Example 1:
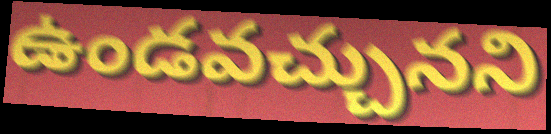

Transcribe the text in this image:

ఉండవచ్చునని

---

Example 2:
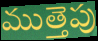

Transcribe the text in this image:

ముత్తెపు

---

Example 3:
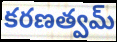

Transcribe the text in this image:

కరణత్వమ్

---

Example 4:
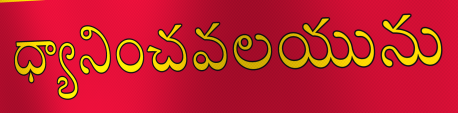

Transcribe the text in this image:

ధ్యానించవలయును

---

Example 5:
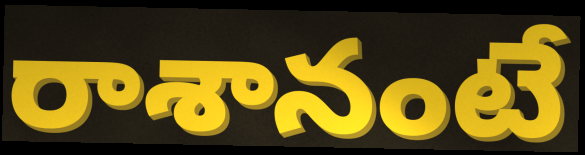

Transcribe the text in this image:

రాశానంటే